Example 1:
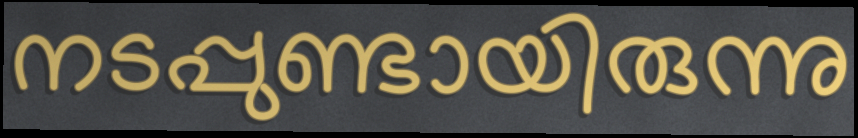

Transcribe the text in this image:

നടപ്പുണ്ടായിരുന്നു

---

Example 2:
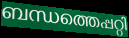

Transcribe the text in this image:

ബന്ധത്തെപ്പറ്റി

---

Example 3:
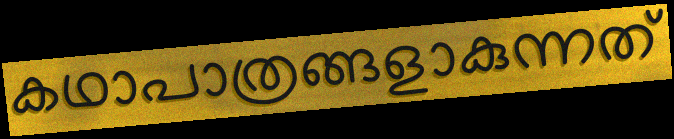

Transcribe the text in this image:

കഥാപാത്രങ്ങളാകുന്നത്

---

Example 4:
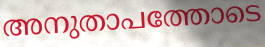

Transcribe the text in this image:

അനുതാപത്തോടെ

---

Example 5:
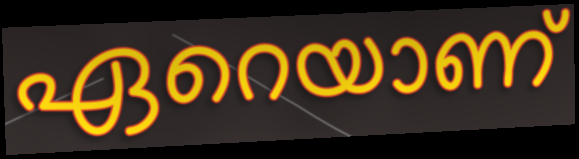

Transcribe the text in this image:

ഏറെയാണ്